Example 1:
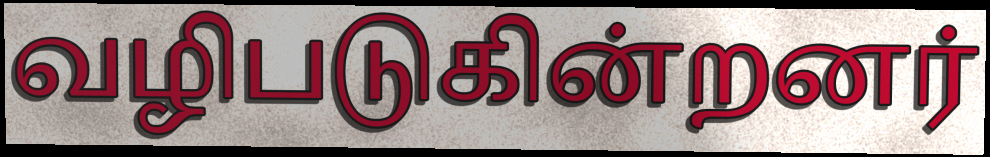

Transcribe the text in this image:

வழிபடுகின்றனர்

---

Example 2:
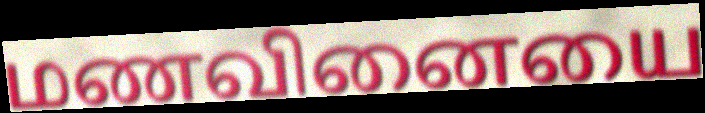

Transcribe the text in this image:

மணவினையை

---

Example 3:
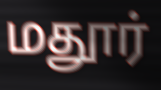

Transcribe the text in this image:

மதூர்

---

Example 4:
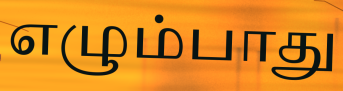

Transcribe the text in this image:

எழும்பாது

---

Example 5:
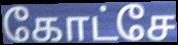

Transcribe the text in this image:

கோட்சே